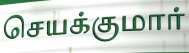
செயக்குமார்